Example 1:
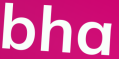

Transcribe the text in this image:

bha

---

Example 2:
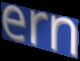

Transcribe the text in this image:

ern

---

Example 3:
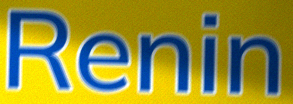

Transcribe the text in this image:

Renin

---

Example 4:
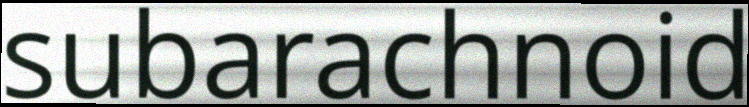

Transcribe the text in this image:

subarachnoid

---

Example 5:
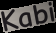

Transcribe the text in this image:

Kabi